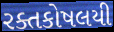
રક્તકોષલયી